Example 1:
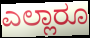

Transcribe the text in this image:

ಎಲ್ಲಾರೂ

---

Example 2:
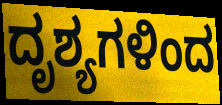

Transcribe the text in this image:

ದೃಶ್ಯಗಳಿಂದ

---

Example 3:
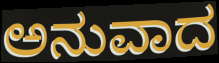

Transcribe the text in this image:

ಅನುವಾದ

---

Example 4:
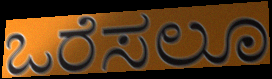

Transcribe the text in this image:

ಒರೆಸಲೂ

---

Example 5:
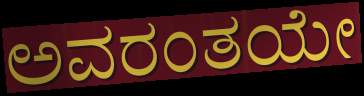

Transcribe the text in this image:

ಅವರಂತಯೇ